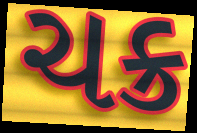
ચક્ર